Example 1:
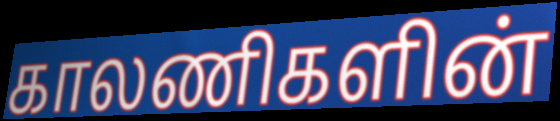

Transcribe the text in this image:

காலணிகளின்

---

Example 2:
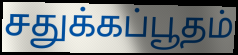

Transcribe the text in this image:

சதுக்கப்பூதம்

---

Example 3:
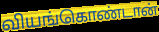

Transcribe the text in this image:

வியங்கொண்டான்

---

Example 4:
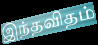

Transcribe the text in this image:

இந்தவிதம்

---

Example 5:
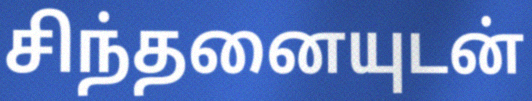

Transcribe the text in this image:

சிந்தனையுடன்